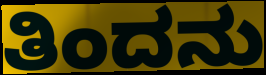
ತಿಂದನು